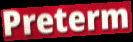
Preterm